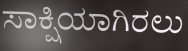
ಸಾಕ್ಷಿಯಾಗಿರಲು